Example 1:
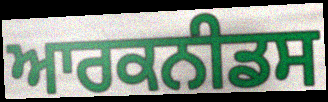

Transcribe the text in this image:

ਆਰਕਨੀਡਸ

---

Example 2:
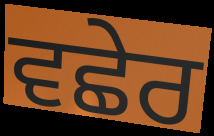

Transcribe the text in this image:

ਵਛੇਰ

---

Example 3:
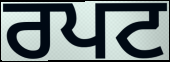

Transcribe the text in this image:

ਰਪਟ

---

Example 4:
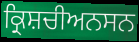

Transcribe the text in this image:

ਕ੍ਰਿਸ਼ਚੀਅਨਸਨ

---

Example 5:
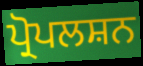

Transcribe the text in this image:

ਪ੍ਰੋਪਲਸ਼ਨ